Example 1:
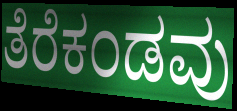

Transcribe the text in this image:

ತೆರೆಕಂಡವು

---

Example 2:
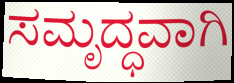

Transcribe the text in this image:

ಸಮೃದ್ಧವಾಗಿ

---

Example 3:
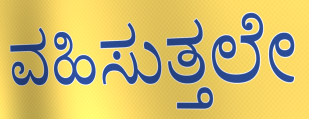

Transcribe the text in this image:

ವಹಿಸುತ್ತಲೇ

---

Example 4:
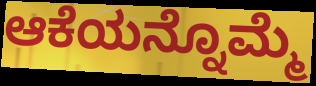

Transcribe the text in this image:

ಆಕೆಯನ್ನೊಮ್ಮೆ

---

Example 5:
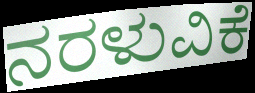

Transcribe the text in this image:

ನರಳುವಿಕೆ